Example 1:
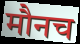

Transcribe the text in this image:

मौनच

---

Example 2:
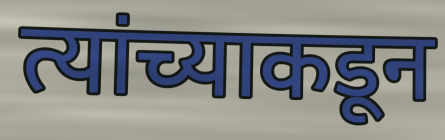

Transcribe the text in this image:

त्यांच्याकडून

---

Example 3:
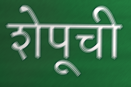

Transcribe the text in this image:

शेपूची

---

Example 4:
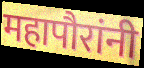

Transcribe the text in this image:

महापौरांनी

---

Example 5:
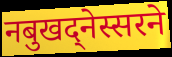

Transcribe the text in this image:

नबुखद्नेस्सरने